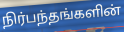
நிர்பந்தங்களின்